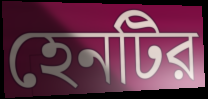
হেনটির